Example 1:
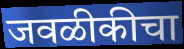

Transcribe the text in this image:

जवळीकीचा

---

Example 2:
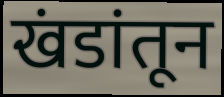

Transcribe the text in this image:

खंडांतून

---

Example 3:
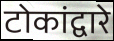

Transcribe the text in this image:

टोकांद्वारे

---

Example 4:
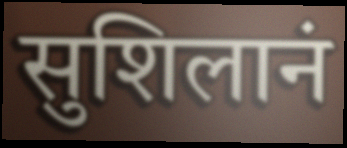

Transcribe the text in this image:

सुशिलानं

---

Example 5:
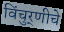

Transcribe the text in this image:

विंचुर्णीचे